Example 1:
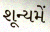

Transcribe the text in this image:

શૂન્યમેં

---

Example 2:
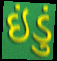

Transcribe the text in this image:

ઇંડું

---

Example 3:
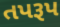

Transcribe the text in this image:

તપરૂપ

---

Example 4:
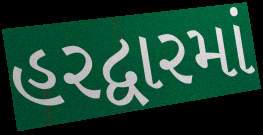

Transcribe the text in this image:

હરદ્વારમાં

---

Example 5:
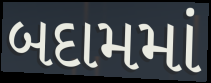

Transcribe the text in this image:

બદામમાં